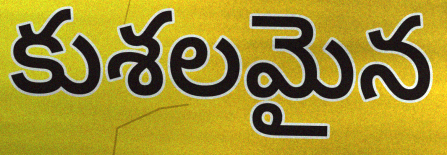
కుశలమైన